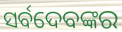
ସର୍ବଦେବଙ୍କର